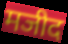
मजीद